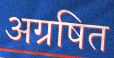
अग्रषित